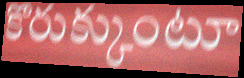
కొరుక్కుంటూ